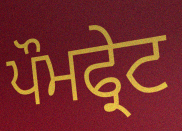
ਪੌਮਫ੍ਰੇਟ